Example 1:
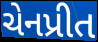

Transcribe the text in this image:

ચેનપ્રીત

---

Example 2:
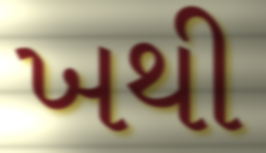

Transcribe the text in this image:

ખથી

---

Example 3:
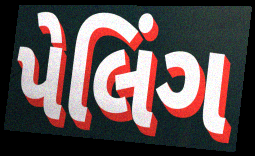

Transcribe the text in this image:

પેલિંગ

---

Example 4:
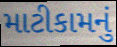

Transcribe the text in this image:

માટીકામનું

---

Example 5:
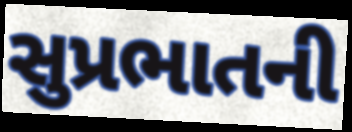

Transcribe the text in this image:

સુપ્રભાતની